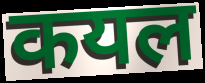
कयल